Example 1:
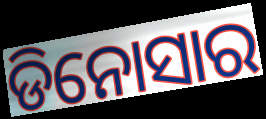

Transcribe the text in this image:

ଡିନୋସାର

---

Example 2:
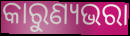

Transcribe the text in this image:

କାରୁଣ୍ୟଭରା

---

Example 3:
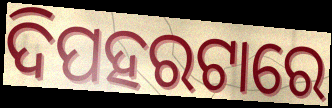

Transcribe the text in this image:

ଦିପହରଟାରେ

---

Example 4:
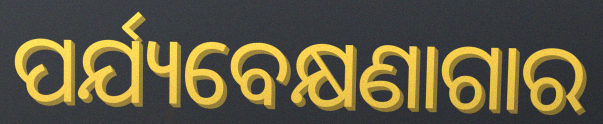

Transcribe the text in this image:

ପର୍ଯ୍ୟବେକ୍ଷଣାଗାର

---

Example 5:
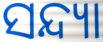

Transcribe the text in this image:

ସନ୍ଦ୍ୟା